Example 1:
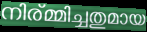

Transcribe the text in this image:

നിര്മ്മിച്ചതുമായ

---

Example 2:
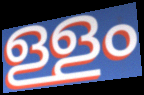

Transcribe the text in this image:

ള്ളം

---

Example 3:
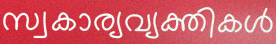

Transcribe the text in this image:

സ്വകാര്യവ്യക്തികൾ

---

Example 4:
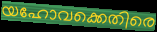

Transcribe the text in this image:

യഹോവക്കെതിരെ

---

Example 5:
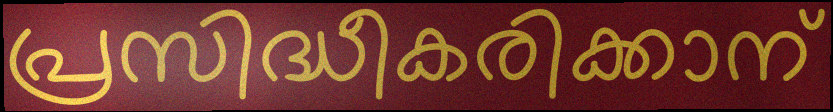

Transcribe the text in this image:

പ്രസിദ്ധീകരിക്കാന്